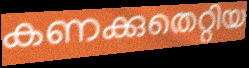
കണക്കുതെറ്റിയ